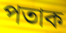
পতাক